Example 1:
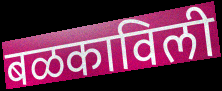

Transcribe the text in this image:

बळकाविली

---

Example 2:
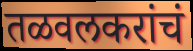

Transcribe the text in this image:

तळवलकरांचं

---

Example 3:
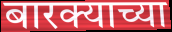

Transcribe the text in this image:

बारक्याच्या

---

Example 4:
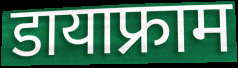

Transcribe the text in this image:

डायाफ्राम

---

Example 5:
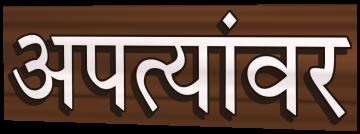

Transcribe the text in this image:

अपत्यांवर